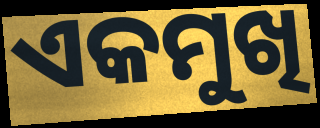
ଏକମୁଖି